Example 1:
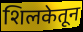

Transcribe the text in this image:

शिलकेतून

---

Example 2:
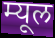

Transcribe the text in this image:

म्यूल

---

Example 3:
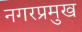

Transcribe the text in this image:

नगरप्रमुख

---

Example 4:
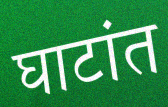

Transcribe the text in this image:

घाटांत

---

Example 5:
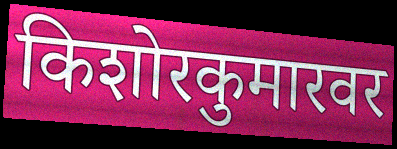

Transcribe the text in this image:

किशोरकुमारवर